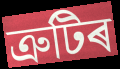
ত্ৰুটিৰ